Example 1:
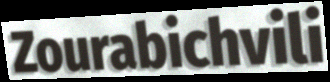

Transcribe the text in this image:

Zourabichvili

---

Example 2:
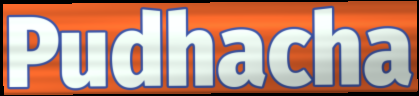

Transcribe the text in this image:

Pudhacha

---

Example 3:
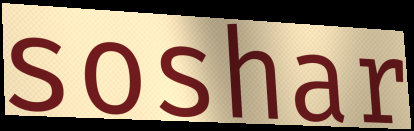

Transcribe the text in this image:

soshar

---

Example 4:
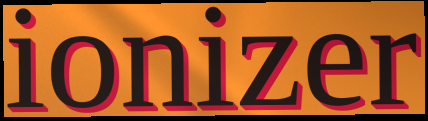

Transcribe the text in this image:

ionizer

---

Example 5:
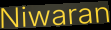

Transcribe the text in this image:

Niwaran